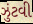
ઝુંટવી